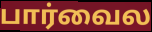
பார்வைல